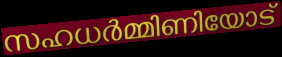
സഹധർമ്മിണിയോട്